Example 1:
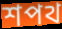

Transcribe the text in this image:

শপথ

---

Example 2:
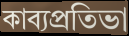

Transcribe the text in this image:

কাব্যপ্রতিভা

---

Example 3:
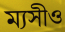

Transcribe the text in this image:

ম্যসীও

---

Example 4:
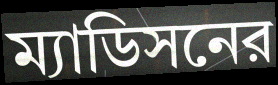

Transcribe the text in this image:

ম্যাডিসনের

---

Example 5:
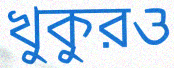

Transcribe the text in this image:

খুকুরও